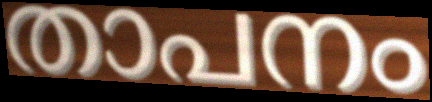
താപനം